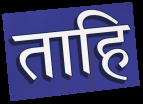
ताहि